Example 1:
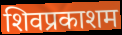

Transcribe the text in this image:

शिवप्रकाशम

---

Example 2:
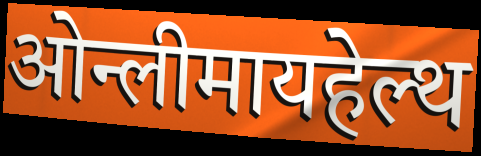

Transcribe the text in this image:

ओन्लीमायहेल्थ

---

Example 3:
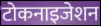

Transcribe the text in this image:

टोकनाइजेशन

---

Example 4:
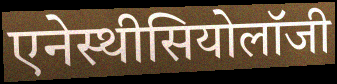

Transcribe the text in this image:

एनेस्थीसियोलॉजी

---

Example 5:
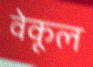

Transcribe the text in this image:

वेकूल